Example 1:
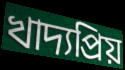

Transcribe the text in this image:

খাদ্যপ্রিয়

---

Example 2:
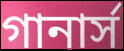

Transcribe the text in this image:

গানার্স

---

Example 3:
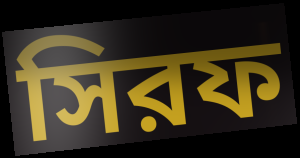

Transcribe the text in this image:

সিরফ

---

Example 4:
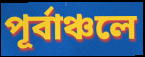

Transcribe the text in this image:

পূর্বাঞ্চলে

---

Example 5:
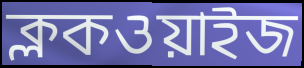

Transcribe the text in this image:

ক্লকওয়াইজ